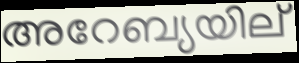
അറേബ്യയില്